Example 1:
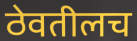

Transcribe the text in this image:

ठेवतीलच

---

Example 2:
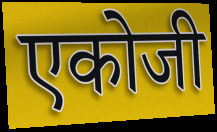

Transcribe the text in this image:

एकोजी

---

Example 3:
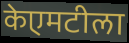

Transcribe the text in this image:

केएमटीला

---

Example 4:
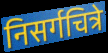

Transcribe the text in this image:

निसर्गचित्रे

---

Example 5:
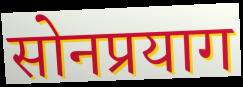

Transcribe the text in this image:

सोनप्रयाग